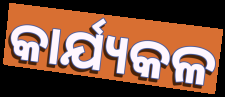
କାର୍ଯ୍ୟକଳ